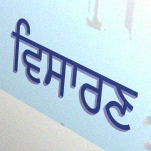
ਵਿਸਾਰਣ